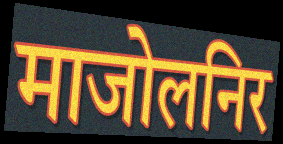
माजोलनिर